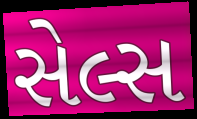
સેલ્સ